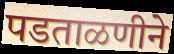
पडताळणीने